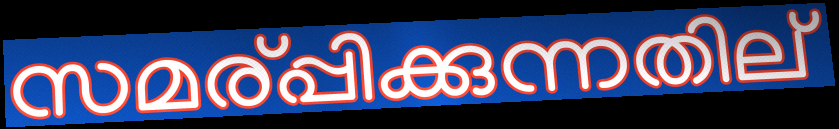
സമര്പ്പിക്കുന്നതില്